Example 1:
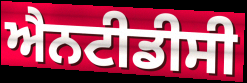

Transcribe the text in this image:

ਐਨਟੀਡੀਸੀ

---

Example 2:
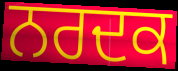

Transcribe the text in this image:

ਨਰਦਕ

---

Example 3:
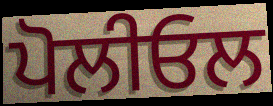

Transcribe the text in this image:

ਪੋਲੀਓਲ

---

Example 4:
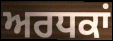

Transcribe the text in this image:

ਅਰਧਕਾਂ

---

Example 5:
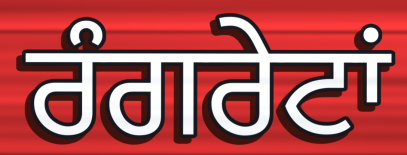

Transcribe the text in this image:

ਰੰਗਰੇਟਾਂ